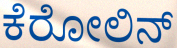
ಕೆರೋಲಿನ್